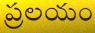
ప్రలయం